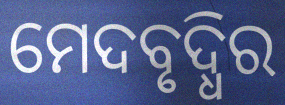
ମେଦବୃଦ୍ଧିର